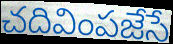
చదివింపజేసే